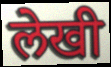
लेखी